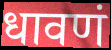
धावणं